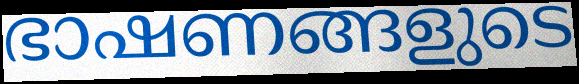
ഭാഷണങ്ങളുടെ